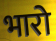
भारो